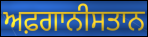
ਅਫ਼ਗਾਨੀਸਤਾਨ